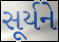
સૂર્યને